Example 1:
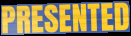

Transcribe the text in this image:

PRESENTED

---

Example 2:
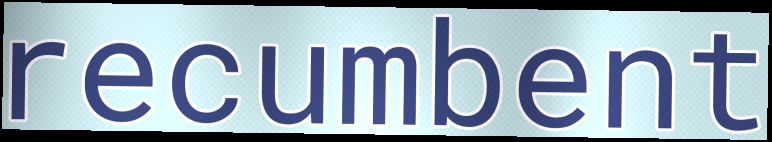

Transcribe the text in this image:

recumbent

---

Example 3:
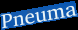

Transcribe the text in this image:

Pneuma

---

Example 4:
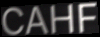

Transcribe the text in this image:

CAHF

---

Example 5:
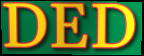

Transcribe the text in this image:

DED